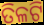
ତିଳଟି